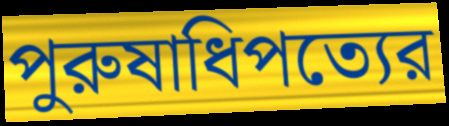
পুরুষাধিপত্যের